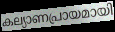
കല്യാണപ്രായമായി